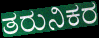
ತರುನಿಕರ